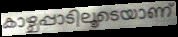
കാഴ്ചപ്പാടിലൂടെയാണ്